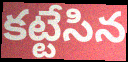
కట్టేసిన